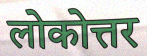
लोकोत्तर